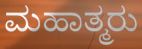
ಮಹಾತ್ಮರು